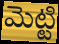
మెట్టి